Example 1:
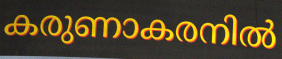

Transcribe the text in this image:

കരുണാകരനിൽ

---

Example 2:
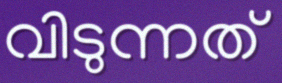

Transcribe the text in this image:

വിടുന്നത്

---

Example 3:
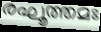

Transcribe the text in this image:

രഘൂത്തമഃ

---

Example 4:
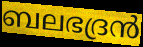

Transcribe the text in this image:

ബലഭദ്രൻ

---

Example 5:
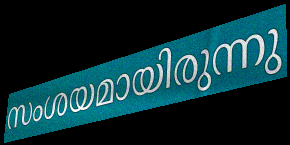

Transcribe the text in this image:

സംശയമായിരുന്നു